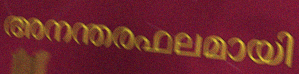
അനന്തരഫലമായി